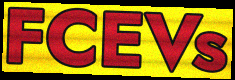
FCEVs